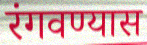
रंगवण्यास